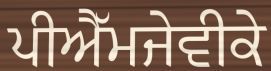
ਪੀਐੱਮਜੇਵੀਕੇ